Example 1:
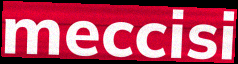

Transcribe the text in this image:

meccisi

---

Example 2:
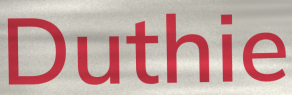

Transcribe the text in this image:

Duthie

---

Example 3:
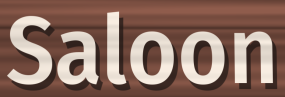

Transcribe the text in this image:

Saloon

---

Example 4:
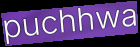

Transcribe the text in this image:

puchhwa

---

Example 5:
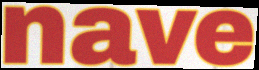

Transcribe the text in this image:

nave